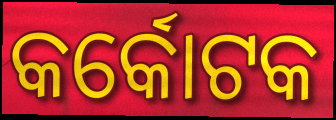
କର୍କୋଟକ